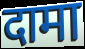
दामा